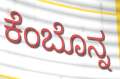
ಕೆಂಬೊನ್ನ